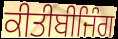
ਕੀਤੀਬੀਜਿੰਗ